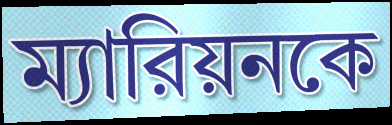
ম্যারিয়নকে